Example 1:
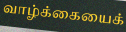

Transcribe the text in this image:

வாழ்க்கையைக்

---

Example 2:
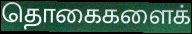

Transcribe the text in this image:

தொகைகளைக்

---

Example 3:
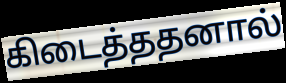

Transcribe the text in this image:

கிடைத்ததனால்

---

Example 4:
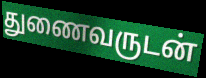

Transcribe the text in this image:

துணைவருடன்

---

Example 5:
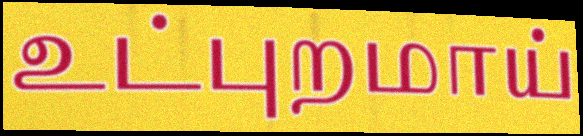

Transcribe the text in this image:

உட்புறமாய்